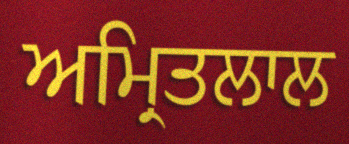
ਅਮ੍ਰਿਤਲਾਲ